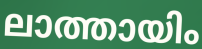
ലാത്തായിം